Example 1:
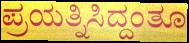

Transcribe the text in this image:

ಪ್ರಯತ್ನಿಸಿದ್ದಂತೂ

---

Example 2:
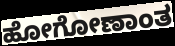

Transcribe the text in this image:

ಹೋಗೋಣಾಂತ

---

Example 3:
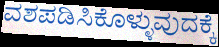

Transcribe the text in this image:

ವಶಪಡಿಸಿಕೊಳ್ಳುವುದಕ್ಕೆ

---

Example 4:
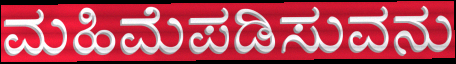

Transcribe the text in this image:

ಮಹಿಮೆಪಡಿಸುವನು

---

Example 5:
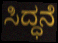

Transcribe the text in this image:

ಸಿದ್ಧನೆ